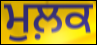
ਮੁਲ਼ਕ